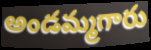
అండమ్మగారు